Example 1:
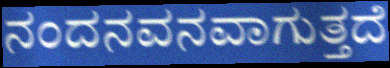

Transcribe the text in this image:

ನಂದನವನವಾಗುತ್ತದೆ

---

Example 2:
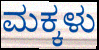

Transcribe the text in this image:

ಮಕ್ಕಳು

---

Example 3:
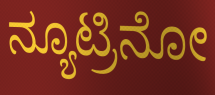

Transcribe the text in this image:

ನ್ಯೂಟ್ರಿನೋ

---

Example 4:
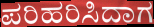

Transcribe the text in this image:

ಪರಿಹರಿಸಿದಾಗ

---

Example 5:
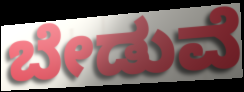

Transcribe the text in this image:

ಬೇಡುವೆ